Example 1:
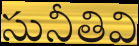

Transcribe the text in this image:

సునీతివి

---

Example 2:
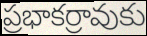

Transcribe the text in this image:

ప్రభాకర్రావుకు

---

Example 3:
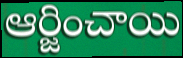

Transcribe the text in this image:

ఆర్జించాయి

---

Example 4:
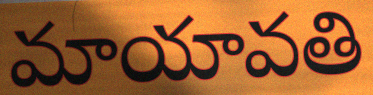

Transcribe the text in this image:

మాయావతి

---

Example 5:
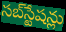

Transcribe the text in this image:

సబ్‌స్టేషన్లు